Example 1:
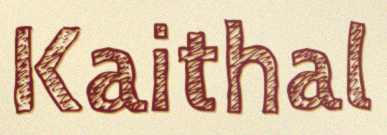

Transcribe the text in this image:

Kaithal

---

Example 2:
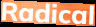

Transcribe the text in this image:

Radical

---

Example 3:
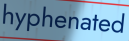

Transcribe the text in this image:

hyphenated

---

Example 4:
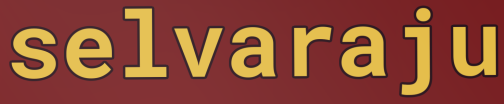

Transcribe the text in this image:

selvaraju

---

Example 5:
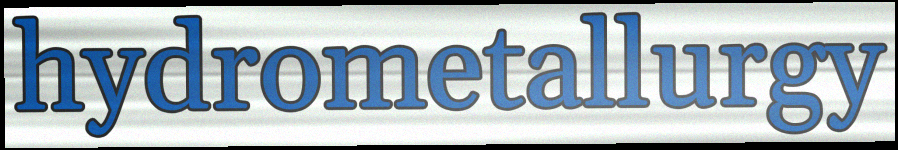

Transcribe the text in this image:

hydrometallurgy